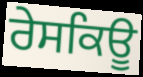
ਰੇਸਕਿਊ